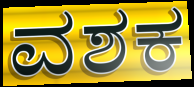
ವಶಕ